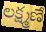
లక్ష్మణే